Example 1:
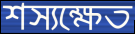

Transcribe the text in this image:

শস্যক্ষেত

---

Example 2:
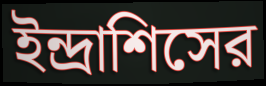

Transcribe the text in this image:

ইন্দ্রাশিসের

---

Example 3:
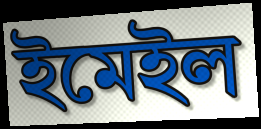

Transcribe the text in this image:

ইমেইল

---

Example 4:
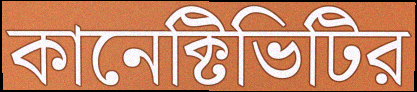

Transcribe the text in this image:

কানেক্টিভিটির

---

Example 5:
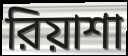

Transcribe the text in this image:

রিয়াশা